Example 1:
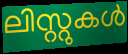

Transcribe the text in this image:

ലിസ്റ്റുകൾ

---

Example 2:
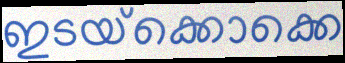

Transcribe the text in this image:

ഇടയ്‌ക്കൊക്കെ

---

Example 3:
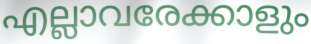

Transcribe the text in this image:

എല്ലാവരേക്കാളും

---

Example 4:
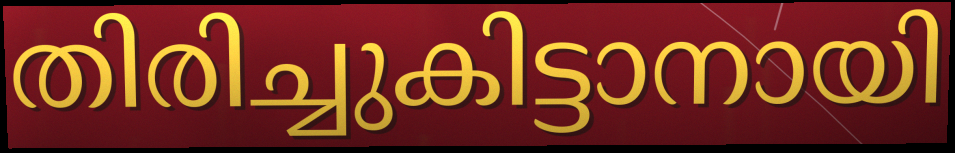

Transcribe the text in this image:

തിരിച്ചുകിട്ടാനായി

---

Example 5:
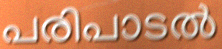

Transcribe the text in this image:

പരിപാടൽ